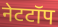
नेटटॉप